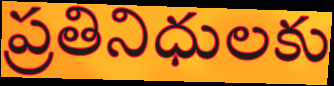
ప్రతినిధులకు